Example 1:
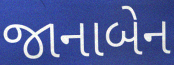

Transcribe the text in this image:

જાનાબેન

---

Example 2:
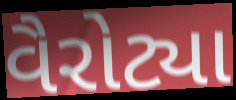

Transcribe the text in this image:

વૈરોટ્યા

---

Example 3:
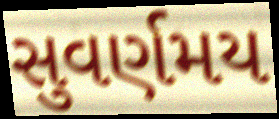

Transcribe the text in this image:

સુવર્ણમય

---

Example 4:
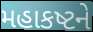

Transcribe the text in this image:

મહાકષ્ટને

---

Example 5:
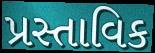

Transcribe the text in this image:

પ્રસ્તાવિક